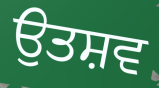
ਉਤਸ਼ਵ